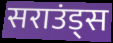
सराउंड्स